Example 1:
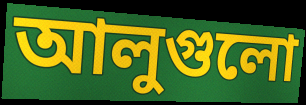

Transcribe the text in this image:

আলুগুলো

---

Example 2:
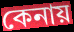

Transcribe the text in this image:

কেনায়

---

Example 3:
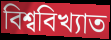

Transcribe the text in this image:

বিশ্ববিখ্যাত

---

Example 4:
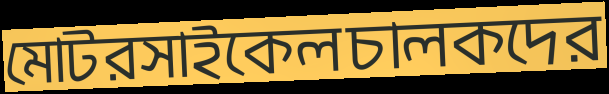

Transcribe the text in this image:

মোটরসাইকেলচালকদের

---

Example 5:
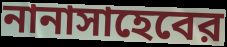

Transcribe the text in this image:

নানাসাহেবের